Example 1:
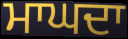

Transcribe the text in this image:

ਮਾਘਦਾ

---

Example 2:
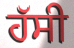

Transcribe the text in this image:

ਹੱਸੀ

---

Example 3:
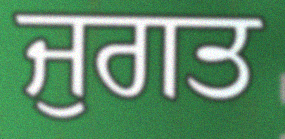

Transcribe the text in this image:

ਜੁਗਤ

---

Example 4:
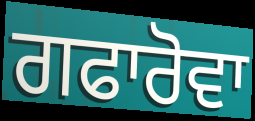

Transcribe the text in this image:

ਗਫਾਰੋਵਾ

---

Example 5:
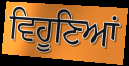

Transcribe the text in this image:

ਵਿਹੂਣਿਆਂ